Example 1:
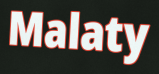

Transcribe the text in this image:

Malaty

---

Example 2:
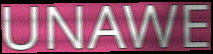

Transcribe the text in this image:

UNAWE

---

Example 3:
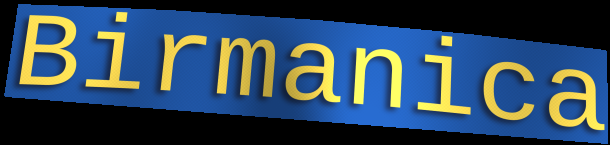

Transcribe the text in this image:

Birmanica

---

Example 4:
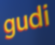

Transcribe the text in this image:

gudi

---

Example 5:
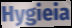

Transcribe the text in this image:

Hygieia